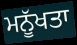
ਮਨੂੱਖਤਾ